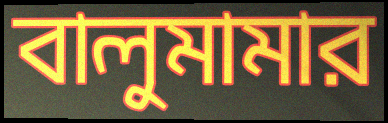
বালুমামার